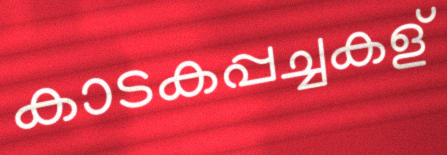
കാടകപ്പച്ചകള്